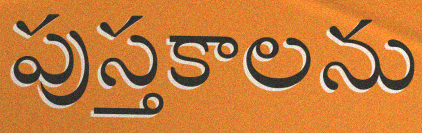
పుస్తకాలను